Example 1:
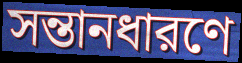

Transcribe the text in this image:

সন্তানধারণে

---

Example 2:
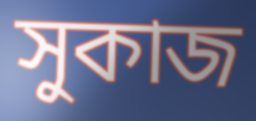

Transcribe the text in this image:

সুকাজ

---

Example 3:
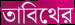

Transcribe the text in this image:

তাবিথের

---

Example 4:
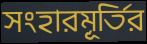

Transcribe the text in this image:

সংহারমূর্তির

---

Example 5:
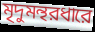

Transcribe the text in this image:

মৃদুমন্থরধারে